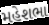
મહેશભા